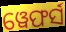
ୱେଫର୍ସ